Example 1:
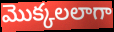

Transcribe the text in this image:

మొక్కలలాగా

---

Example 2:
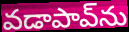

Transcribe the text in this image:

వడాపావ్‌ను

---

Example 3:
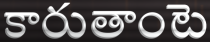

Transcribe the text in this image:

కారుతాంటె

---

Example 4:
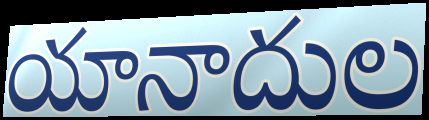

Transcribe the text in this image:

యానాదుల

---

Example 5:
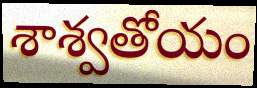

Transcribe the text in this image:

శాశ్వతోయం